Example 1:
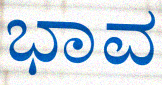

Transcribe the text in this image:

ಭಾವ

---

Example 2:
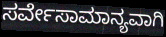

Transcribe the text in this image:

ಸರ್ವೇಸಾಮಾನ್ಯವಾಗಿ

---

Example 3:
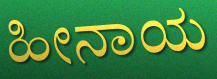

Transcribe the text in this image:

ಹೀನಾಯ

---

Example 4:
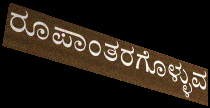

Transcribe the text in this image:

ರೂಪಾಂತರಗೊಳ್ಳುವ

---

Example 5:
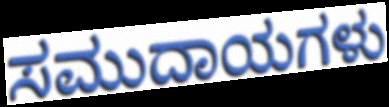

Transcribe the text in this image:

ಸಮುದಾಯಗಳು